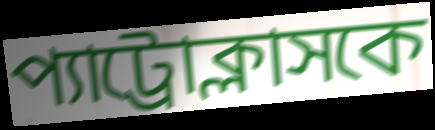
প্যাট্রোক্লাসকে